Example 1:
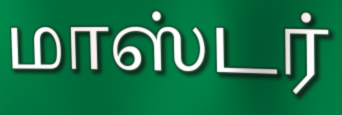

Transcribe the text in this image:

மாஸ்டர்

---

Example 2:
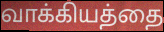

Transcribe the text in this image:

வாக்கியத்தை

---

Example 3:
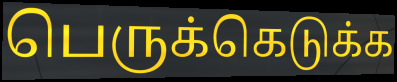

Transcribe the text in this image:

பெருக்கெடுக்க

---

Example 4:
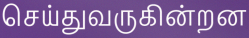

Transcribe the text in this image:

செய்துவருகின்றன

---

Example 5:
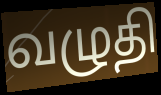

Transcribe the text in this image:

வழுதி